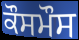
ਕੌਸਮੌਸ